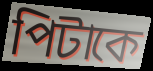
পিটাকে